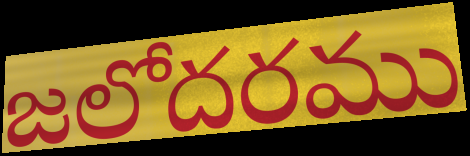
జలోదరము